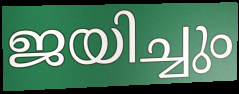
ജയിച്ചും